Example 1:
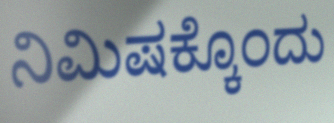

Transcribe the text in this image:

ನಿಮಿಷಕ್ಕೊಂದು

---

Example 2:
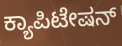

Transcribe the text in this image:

ಕ್ಯಾಪಿಟೇಷನ್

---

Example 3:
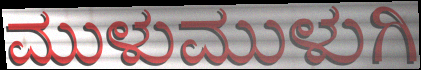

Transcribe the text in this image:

ಮುಳುಮುಳುಗಿ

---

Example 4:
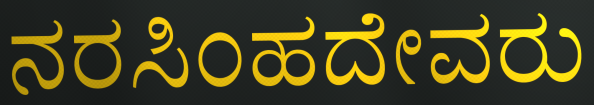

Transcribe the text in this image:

ನರಸಿಂಹದೇವರು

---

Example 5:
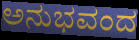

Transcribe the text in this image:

ಅನುಭವಂದ